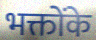
भक्तोंके